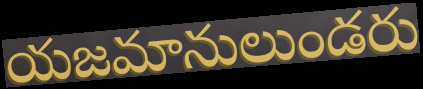
యజమానులుండరు